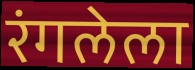
रंगलेला